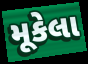
મૂકેલા